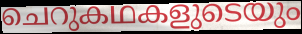
ചെറുകഥകളുടെയും